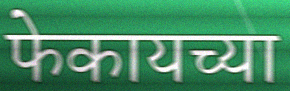
फेकायच्या